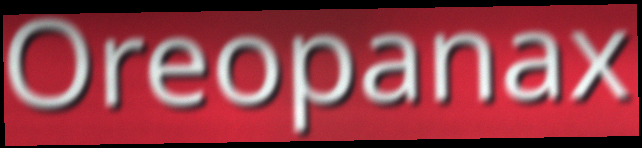
Oreopanax